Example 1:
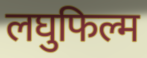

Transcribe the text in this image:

लघुफिल्म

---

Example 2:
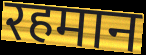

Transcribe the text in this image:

रहमान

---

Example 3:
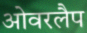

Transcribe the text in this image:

ओवरलैप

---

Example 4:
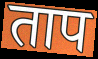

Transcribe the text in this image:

ताप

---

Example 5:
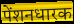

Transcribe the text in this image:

पेंशनधारक